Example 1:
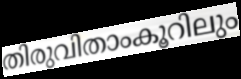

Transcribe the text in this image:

തിരുവിതാംകൂറിലും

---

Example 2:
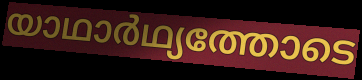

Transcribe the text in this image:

യാഥാർഥ്യത്തോടെ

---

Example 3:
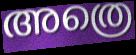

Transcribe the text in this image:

അത്രെ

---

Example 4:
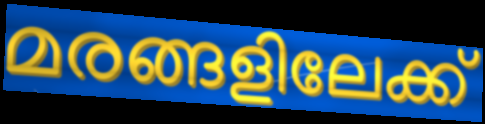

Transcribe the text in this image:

മരങ്ങളിലേക്ക്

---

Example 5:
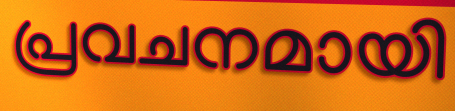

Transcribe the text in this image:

പ്രവചനമായി